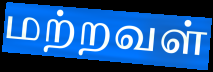
மற்றவள்